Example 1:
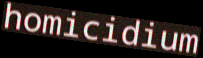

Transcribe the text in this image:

homicidium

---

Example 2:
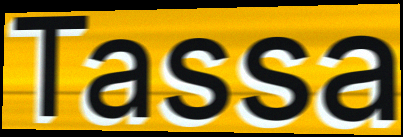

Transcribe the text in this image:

Tassa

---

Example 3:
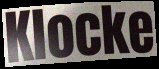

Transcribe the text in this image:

Klocke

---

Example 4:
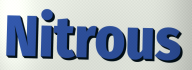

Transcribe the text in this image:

Nitrous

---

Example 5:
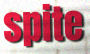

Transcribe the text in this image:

spite